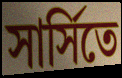
সার্সিতে